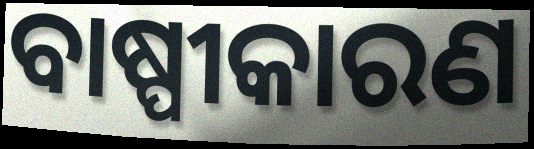
ବାଷ୍ପୀକାରଣ